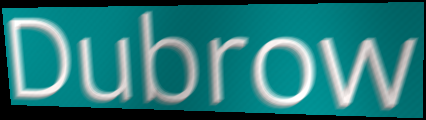
Dubrow